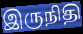
இருநிதி